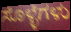
ಸೊಳ್ಳೆಗಳು